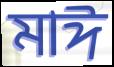
মাঈ